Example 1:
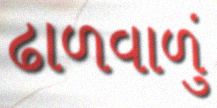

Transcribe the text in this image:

ઢાળવાળું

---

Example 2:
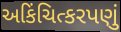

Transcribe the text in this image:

અકિંચિત્કરપણું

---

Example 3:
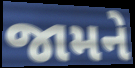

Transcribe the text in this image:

જામને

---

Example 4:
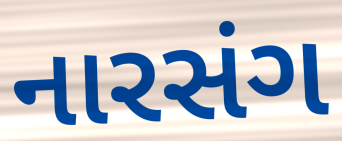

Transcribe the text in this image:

નારસંગ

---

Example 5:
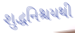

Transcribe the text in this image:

શુદ્ધનિશ્ચયથી